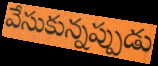
వేసుకున్నప్పుడు